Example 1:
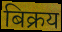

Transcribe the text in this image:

बिक्रय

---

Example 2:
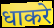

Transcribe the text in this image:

धाकरे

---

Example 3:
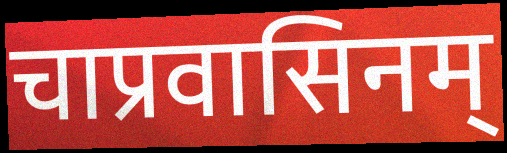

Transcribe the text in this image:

चाप्रवासिनम्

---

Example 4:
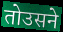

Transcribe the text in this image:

तोउसने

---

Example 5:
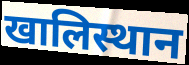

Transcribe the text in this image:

खालिस्थान